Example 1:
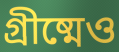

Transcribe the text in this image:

গ্রীষ্মেও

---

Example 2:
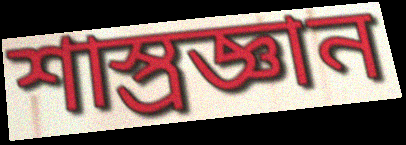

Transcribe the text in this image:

শাস্ত্রজ্ঞান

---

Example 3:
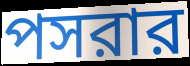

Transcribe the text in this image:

পসরার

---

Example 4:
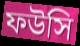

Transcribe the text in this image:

ফউসি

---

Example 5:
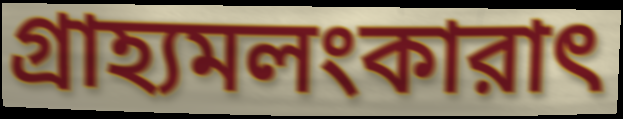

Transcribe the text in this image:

গ্রাহ্যমলংকারাৎ